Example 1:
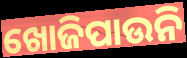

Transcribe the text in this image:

ଖୋଜିପାଉନି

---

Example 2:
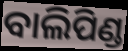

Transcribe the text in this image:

ବାଲିପିଣ୍ଡ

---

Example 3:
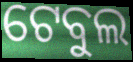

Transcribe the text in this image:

ଟେବୁଲ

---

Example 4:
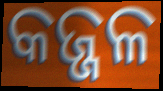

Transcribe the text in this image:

କଜ୍ଜଳ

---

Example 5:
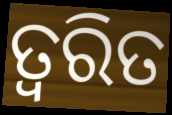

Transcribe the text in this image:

ତ୍ଵରିତ